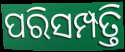
ପରିସମ୍ପତ୍ତି